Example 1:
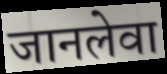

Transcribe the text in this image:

जानलेवा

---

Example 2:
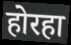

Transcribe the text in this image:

होरहा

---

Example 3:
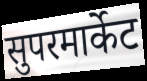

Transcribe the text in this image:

सुपरमार्केट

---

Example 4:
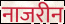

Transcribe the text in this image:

नाजरीन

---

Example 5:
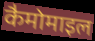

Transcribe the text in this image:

कैमोमाइल